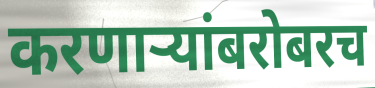
करणाऱ्यांबरोबरच